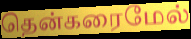
தென்கரைமேல்